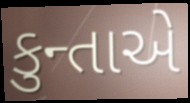
કુન્તાએ